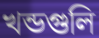
খন্ডগুলি